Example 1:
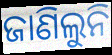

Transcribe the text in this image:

ଜାଣିଲୁନି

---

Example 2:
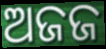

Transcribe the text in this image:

ଅଜଜ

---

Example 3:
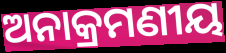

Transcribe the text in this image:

ଅନାକ୍ରମଣୀୟ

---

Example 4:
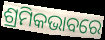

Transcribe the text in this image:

ଶ୍ରମିକଭାବରେ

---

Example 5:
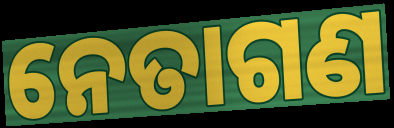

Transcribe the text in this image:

ନେତାଗଣ